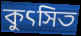
কুৎসিত